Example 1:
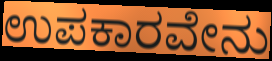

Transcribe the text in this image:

ಉಪಕಾರವೇನು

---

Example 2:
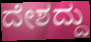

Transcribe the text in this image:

ದೇಶದ್ದು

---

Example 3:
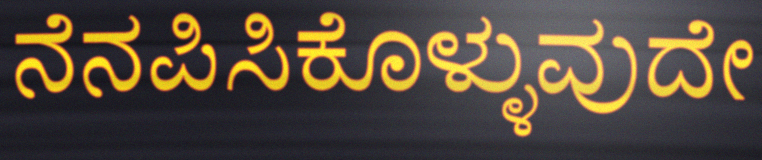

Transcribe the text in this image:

ನೆನಪಿಸಿಕೊಳ್ಳುವುದೇ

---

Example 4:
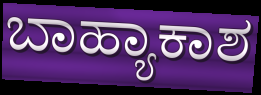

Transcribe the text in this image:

ಬಾಹ್ಯಾಕಾಶ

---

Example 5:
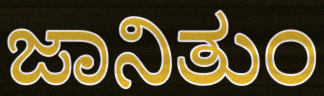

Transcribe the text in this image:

ಜಾನಿತುಂ